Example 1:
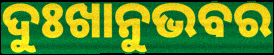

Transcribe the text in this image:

ଦୁଃଖାନୁଭବର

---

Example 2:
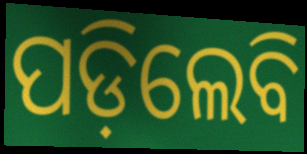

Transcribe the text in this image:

ପଡ଼ିଲେବି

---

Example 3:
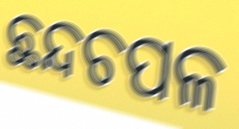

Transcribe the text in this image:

ଛନ୍ଦଚପଳ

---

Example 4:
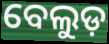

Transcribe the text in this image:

ବେଲୁଡ଼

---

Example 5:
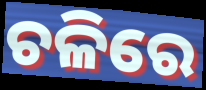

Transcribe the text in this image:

ଚଳିରେ